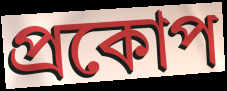
প্রকোপ